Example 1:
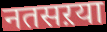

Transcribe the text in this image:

नतसऱया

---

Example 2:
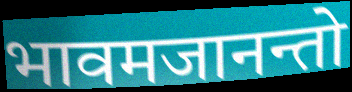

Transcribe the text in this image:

भावमजानन्तो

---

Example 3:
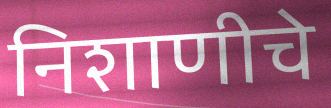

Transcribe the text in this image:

निशाणीचे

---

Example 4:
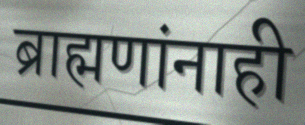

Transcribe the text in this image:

ब्राह्मणांनाही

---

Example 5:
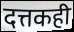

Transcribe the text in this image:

दत्तकही